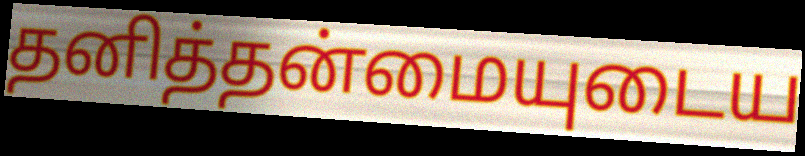
தனித்தன்மையுடைய